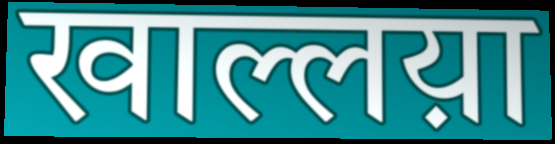
खाल्लय़ा